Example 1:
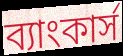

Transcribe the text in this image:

ব্যাংকার্স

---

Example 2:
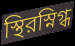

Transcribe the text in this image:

স্থিরস্নিগ্ধ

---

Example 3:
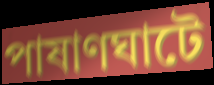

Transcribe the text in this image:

পাষাণঘাটে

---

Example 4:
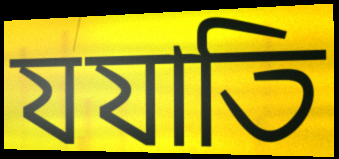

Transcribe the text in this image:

যযাতি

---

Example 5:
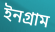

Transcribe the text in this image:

ইনগ্রাম